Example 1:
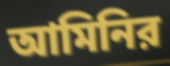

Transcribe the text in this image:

আমিনির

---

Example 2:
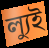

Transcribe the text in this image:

ল্যুই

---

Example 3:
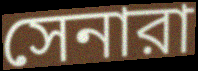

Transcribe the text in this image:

সেনারা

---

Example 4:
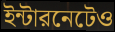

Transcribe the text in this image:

ইন্টারনেটেও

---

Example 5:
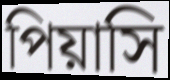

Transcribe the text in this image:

পিয়াসি